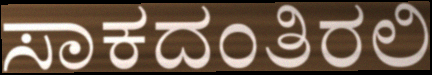
ಸಾಕದಂತಿರಲಿ